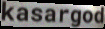
kasargod